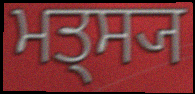
ਮਤ੍ਸ੍ਯ